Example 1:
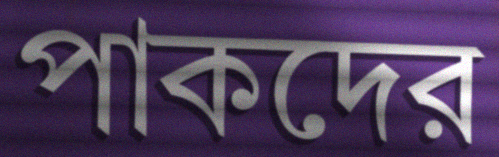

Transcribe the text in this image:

পাকদের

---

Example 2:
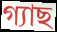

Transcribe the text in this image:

গ্যাছ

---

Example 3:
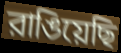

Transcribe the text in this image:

রাঙিয়েছি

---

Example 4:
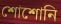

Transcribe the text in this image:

শোশোনি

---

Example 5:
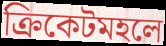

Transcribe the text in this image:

ক্রিকেটমহলে